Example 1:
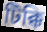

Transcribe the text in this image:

টিক্কি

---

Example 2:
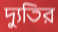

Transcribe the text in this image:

দ্যুতির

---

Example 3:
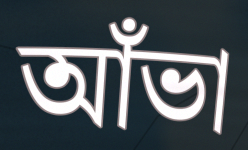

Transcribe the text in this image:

আঁভা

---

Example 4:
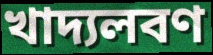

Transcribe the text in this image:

খাদ্যলবণ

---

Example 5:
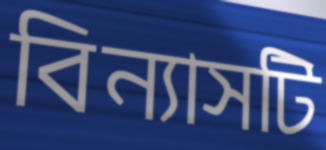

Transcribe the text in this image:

বিন্যাসটি